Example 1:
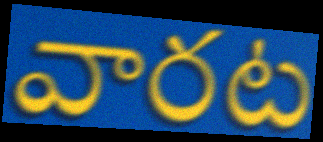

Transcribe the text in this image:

వారట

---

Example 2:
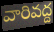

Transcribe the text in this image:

వారివద్ద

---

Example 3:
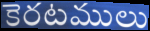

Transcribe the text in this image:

కెరటములు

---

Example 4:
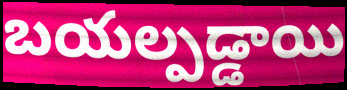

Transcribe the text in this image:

బయల్పడ్డాయి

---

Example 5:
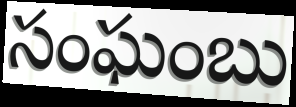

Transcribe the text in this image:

సంఘంబు